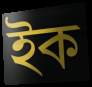
ইক